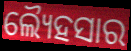
ଲ୍ୟୈହସାର